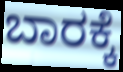
ಬಾರಕ್ಕೆ